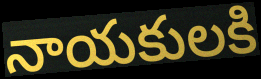
నాయకులకి